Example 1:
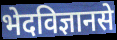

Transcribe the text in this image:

भेदविज्ञानसे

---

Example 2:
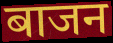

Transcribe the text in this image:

बाजन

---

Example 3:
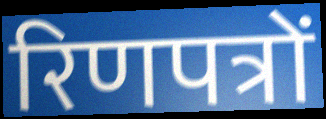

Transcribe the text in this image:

रिणपत्रों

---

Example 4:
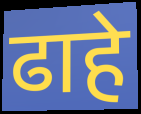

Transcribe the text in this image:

ढाहे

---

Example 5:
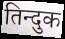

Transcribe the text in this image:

तिन्दुक